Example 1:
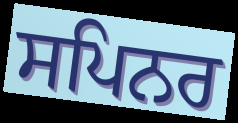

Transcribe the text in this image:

ਸਪਿਨਰ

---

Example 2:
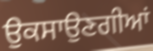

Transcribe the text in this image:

ਉਕਸਾਉਣਗੀਆਂ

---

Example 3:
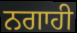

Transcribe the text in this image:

ਨਗਾਹੀ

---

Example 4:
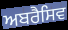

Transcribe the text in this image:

ਅਬਰੈਸਿਵ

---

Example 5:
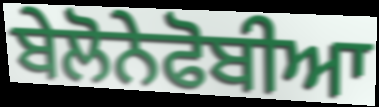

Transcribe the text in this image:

ਬੇਲੋਨੇਫੋਬੀਆ